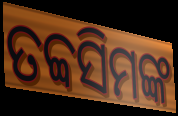
ତବ୍ବସିମଙ୍କ